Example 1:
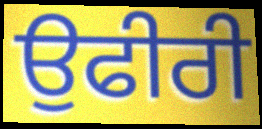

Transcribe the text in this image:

ਉਫੀਰੀ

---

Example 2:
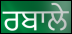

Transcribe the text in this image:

ਰਬਾਲੇ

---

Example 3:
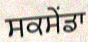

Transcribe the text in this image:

ਸਕਸੇਂਡਾ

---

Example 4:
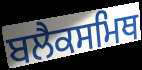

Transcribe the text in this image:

ਬਲੈਕਸਮਿਥ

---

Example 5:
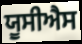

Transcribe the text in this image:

ਯੂਸੀਐਸ